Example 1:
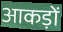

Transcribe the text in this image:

आकड़ों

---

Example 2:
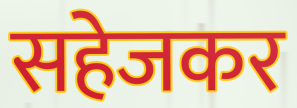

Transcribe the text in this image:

सहेजकर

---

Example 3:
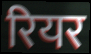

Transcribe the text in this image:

रियर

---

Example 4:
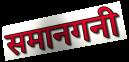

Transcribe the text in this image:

समानगनी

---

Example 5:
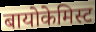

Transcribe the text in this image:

बायोकेमिस्ट